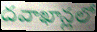
దవాఖాన్లలో